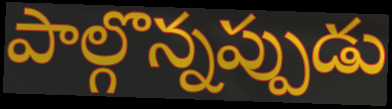
పాల్గొన్నప్పుడు